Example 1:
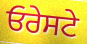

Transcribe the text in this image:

ਓਰੇਸਟੇ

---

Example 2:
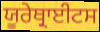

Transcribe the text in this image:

ਯੂਰੇਥ੍ਰਾਈਟਸ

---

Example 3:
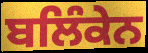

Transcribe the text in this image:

ਬਲਿੰਕੇਨ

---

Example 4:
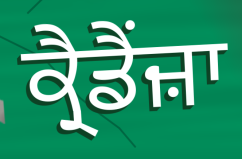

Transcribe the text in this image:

ਕ੍ਰੈਡੈਂਜ਼ਾ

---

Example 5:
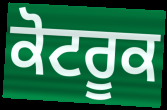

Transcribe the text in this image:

ਕੋਟਰੂਕ